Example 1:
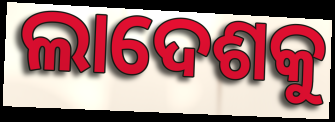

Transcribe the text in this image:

ଲାଦେଶକୁ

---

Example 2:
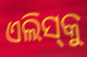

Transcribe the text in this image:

ଏଲିସ୍‌କୁ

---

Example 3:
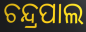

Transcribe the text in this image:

ଚନ୍ଦ୍ରପାଲ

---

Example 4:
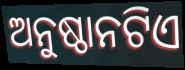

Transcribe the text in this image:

ଅନୁଷ୍ଠାନଟିଏ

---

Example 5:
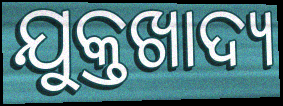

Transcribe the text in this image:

ଯୁକ୍ତଖାଦ୍ୟ